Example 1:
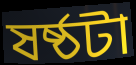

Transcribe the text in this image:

ষষ্ঠটা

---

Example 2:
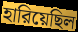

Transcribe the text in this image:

হারিয়েছিল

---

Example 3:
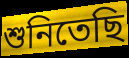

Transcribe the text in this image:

শুনিতেছি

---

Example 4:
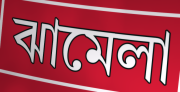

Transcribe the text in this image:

ঝামেলা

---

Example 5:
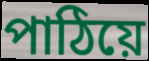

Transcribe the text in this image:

পাঠিয়ে